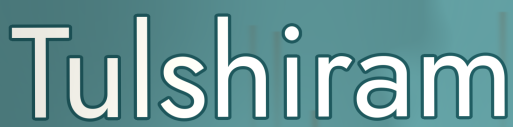
Tulshiram